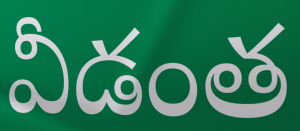
వీడంత